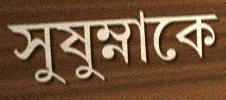
সুষুম্নাকে